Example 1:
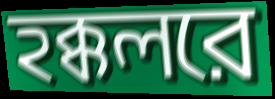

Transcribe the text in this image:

হক্কলরে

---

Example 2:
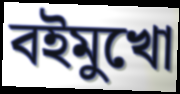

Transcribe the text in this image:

বইমুখো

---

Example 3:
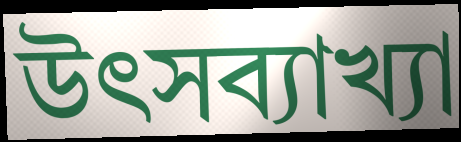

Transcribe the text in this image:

উৎসব্যাখ্যা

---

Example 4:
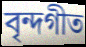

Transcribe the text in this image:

বৃন্দগীত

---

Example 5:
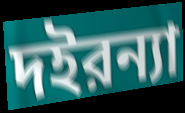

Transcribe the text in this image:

দইরন্যা